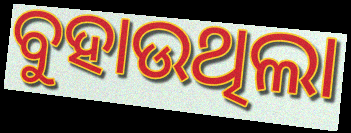
ବୁହାଉଥିଲା